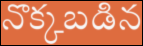
నొక్కబడిన